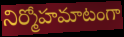
నిర్మోహమాటంగా